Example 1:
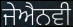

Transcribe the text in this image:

ਜੇਐਨਵੀ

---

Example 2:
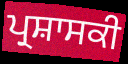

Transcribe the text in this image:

ਪ੍ਰਸ਼ਾਸਕੀ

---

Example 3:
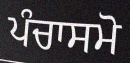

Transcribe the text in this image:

ਪੰਚਾਸਮੋ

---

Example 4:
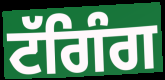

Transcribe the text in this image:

ਟੱਗਿੰਗ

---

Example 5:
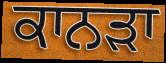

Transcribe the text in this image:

ਕਾਨੜਾ